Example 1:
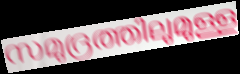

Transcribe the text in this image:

സമുദ്രത്തിലുമുള്ള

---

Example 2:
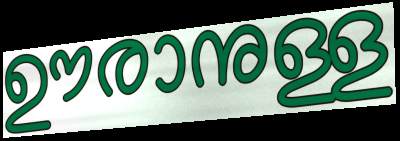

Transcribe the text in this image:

ഊരാനുള്ള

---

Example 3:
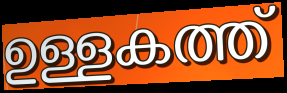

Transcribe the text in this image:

ഉള്ളകത്ത്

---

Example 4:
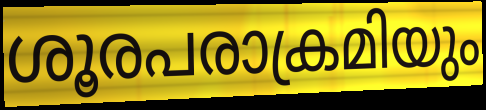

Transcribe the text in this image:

ശൂരപരാക്രമിയും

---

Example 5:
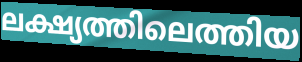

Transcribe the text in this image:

ലക്ഷ്യത്തിലെത്തിയ